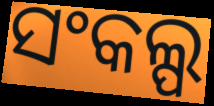
ସଂକଲ୍ପ